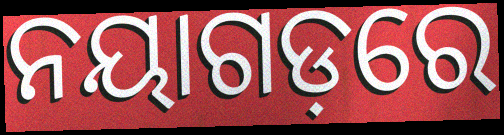
ନୟାଗଡ଼ରେ